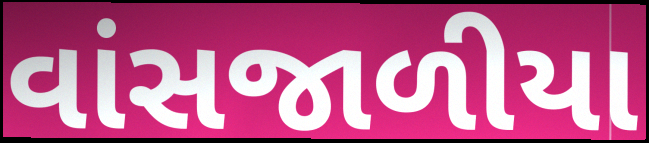
વાંસજાળીયા